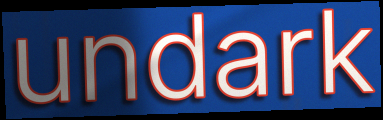
undark